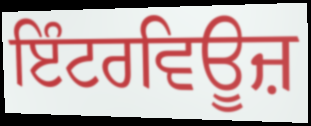
ਇੰਟਰਵਿਊਜ਼